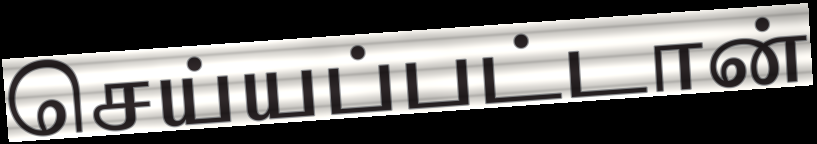
செய்யப்பட்டான்